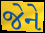
જેને